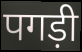
पगड़ी